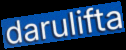
darulifta